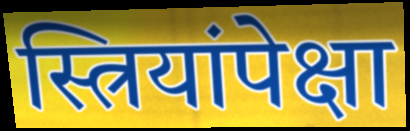
स्त्रियांपेक्षा